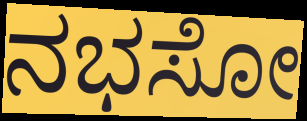
ನಭಸೋ